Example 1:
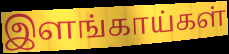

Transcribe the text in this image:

இளங்காய்கள்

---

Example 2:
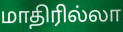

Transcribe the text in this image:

மாதிரில்லா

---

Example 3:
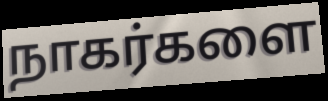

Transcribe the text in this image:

நாகர்களை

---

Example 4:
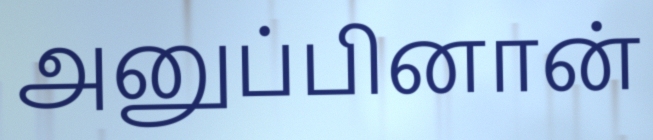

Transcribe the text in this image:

அனுப்பினான்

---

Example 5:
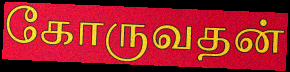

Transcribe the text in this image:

கோருவதன்